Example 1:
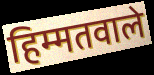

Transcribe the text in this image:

हिम्मतवाले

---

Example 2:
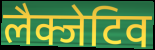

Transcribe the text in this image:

लैक्जेटिव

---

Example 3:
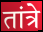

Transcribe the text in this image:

तांत्रे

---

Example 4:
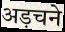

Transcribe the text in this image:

अड़चने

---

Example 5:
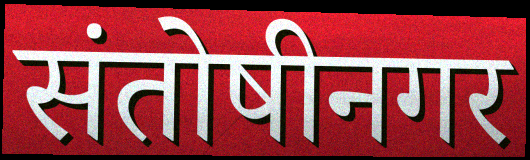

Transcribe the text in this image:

संतोषीनगर